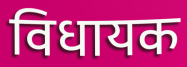
विधायक